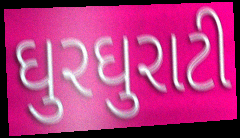
ઘુરઘુરાટી